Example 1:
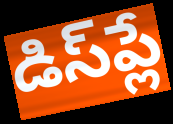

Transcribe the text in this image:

డిస్‌ప్లే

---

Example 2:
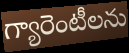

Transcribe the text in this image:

గ్యారెంటీలను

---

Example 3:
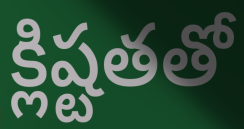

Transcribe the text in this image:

క్లిష్టతతో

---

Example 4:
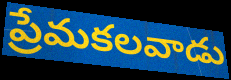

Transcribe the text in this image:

ప్రేమకలవాడు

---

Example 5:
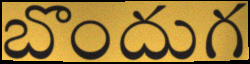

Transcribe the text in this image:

బొందుగ